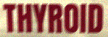
THYROID